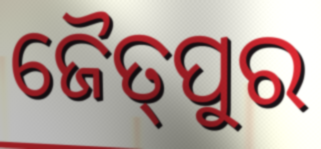
ଜୈତ୍‌ପୁର